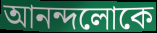
আনন্দলোকে